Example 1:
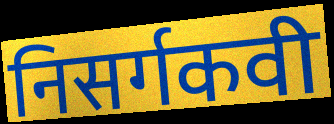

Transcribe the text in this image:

निसर्गकवी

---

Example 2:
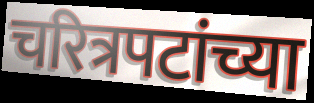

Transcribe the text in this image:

चरित्रपटांच्या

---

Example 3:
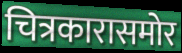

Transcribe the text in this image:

चित्रकारासमोर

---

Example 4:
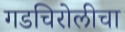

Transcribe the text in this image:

गडचिरोलीचा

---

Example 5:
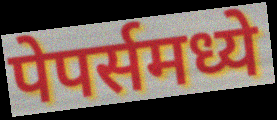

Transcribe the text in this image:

पेपर्समध्ये